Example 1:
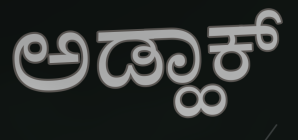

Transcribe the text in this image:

ಅಡ್ಹಾಕ್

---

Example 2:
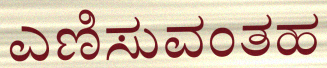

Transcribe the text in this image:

ಎಣಿಸುವಂತಹ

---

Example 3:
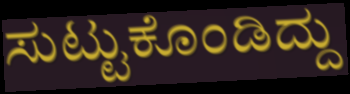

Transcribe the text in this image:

ಸುಟ್ಟುಕೊಂಡಿದ್ದು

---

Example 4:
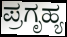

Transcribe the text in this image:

ಪ್ರಗೃಹ್ಯ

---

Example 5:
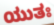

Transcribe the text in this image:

ಯುತಃ